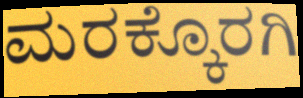
ಮರಕ್ಕೊರಗಿ